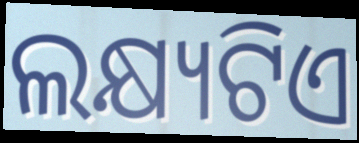
ଲକ୍ଷ୍ୟଟିଏ